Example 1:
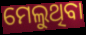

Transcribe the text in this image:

ମେଲୁଥିବା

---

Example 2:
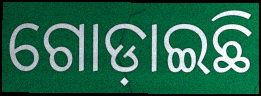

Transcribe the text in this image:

ଗୋଡ଼ାଇଛି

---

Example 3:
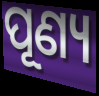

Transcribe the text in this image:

ପୂଣ୍ୟ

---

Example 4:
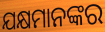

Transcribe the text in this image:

ଯକ୍ଷମାନଙ୍କର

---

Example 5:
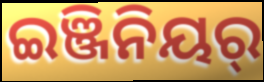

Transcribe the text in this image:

ଇଞ୍ଜିନିୟର୍